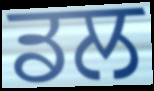
ਡਲ